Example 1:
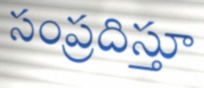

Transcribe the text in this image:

సంప్రదిస్తూ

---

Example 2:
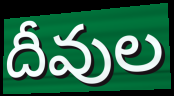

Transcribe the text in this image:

దీవుల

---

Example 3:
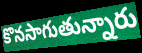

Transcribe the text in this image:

కొనసాగుతున్నారు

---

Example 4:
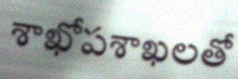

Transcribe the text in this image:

శాఖోపశాఖలతో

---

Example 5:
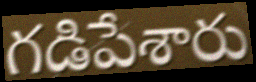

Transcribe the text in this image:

గడిపేశారు